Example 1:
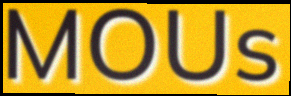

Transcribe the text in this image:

MOUs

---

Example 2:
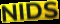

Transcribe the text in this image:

NIDS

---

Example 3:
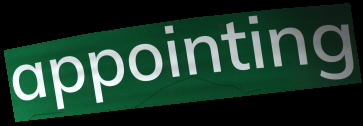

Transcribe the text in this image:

appointing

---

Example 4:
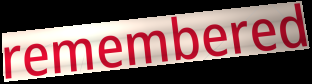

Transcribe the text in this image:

remembered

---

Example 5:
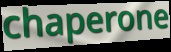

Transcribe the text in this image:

chaperone